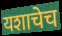
यशाचेच